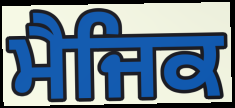
ਮੈਜਿਕ